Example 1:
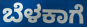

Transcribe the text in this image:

ಬೆಳಕಾಗೆ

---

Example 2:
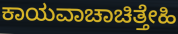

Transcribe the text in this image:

ಕಾಯವಾಚಾಚಿತ್ತೇಹಿ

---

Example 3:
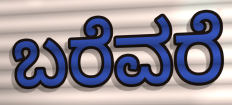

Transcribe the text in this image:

ಬರೆವರೆ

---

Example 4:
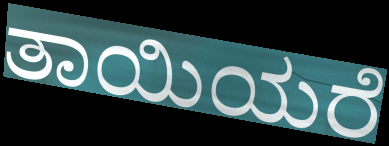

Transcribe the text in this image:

ತಾಯಿಯರೆ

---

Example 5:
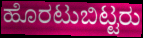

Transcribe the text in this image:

ಹೊರಟುಬಿಟ್ಟರು